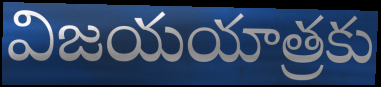
విజయయాత్రకు